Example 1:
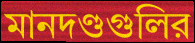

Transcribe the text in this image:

মানদণ্ডগুলির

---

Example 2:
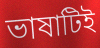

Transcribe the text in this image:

ভাষাটিই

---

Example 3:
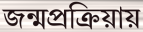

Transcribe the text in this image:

জন্মপ্রক্রিয়ায়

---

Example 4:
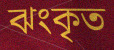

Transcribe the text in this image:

ঝংকৃত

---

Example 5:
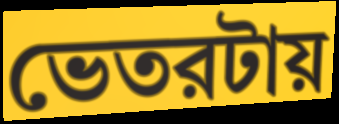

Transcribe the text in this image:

ভেতরটায়